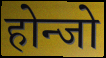
होन्जो